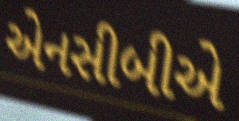
એનસીબીએ